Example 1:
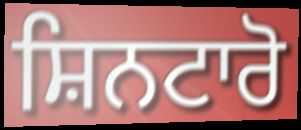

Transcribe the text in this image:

ਸ਼ਿਨਟਾਰੋ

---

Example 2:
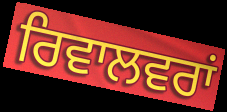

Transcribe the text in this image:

ਰਿਵਾਲਵਰਾਂ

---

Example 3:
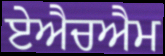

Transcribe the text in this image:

ਏਐਚਐਮ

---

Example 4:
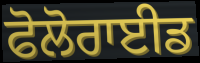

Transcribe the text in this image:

ਫੋਲੋਰਾਈਡ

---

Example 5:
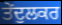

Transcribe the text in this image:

ਤੇਂਦੁਲਕਰ